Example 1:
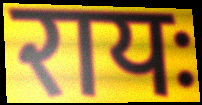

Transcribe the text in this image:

रायः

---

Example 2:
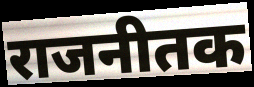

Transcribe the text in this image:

राजनीतक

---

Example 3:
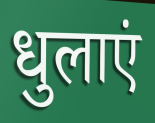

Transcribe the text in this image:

धुलाएं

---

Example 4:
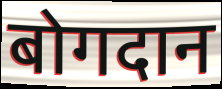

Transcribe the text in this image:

बोगदान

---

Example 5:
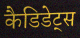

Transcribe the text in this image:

कैडिडेट्स